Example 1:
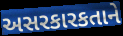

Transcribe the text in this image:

અસરકારકતાને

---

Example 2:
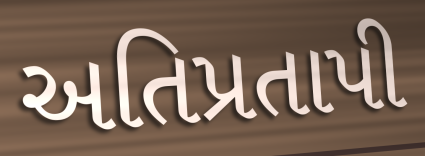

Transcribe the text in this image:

અતિપ્રતાપી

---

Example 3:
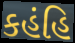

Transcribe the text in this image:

કહંહિ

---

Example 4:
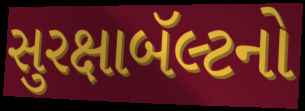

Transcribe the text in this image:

સુરક્ષાબૅલ્ટનો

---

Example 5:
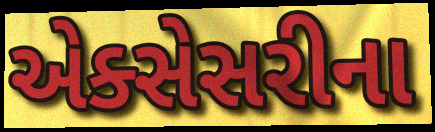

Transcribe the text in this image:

એક્સેસરીના